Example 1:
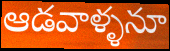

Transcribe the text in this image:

ఆడవాళ్ళనూ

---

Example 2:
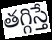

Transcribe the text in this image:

తగ్గిస్తే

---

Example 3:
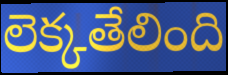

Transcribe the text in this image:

లెక్కతేలింది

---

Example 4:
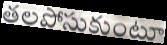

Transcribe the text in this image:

తలపోసుకుంటూ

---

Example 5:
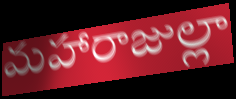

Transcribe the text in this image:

మహారాజుల్లా